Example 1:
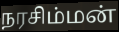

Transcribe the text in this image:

நரசிம்மன்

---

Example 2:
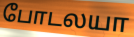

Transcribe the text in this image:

போடலயா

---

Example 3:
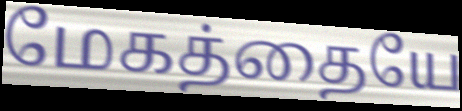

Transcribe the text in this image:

மேகத்தையே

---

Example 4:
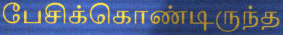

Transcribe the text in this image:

பேசிக்கொண்டிருந்த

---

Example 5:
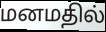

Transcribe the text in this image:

மனமதில்